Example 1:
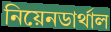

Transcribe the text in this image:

নিয়েনডার্থাল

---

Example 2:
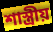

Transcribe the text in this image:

শাস্ত্রীয়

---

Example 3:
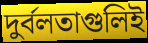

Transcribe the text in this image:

দুর্বলতাগুলিই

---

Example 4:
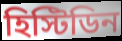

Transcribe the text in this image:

হিস্টিডিন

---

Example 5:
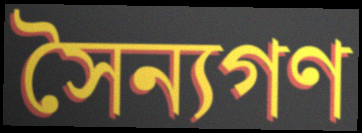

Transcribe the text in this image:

সৈন্যগণ